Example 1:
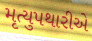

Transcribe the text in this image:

મૃત્યુપથારીએ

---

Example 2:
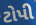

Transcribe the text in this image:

ટોપી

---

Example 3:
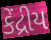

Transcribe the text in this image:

કેંદ્રીય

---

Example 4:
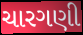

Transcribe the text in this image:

ચારગણી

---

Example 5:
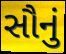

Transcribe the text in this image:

સૌનું